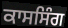
ਕਾਸਸਿੰਗ